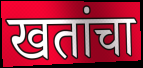
खतांचा